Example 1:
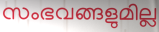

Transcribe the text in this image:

സംഭവങ്ങളുമില്ല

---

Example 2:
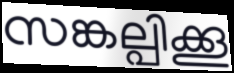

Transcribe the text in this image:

സങ്കല്പിക്കൂ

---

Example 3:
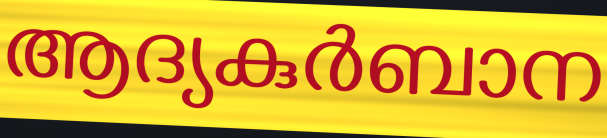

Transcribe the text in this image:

ആദ്യകുർബാന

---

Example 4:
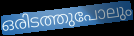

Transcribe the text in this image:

ഒരിടത്തുപോലും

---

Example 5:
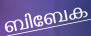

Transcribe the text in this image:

ബിബേക